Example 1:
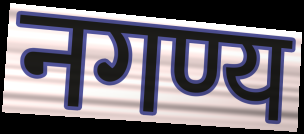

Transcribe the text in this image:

नगण्य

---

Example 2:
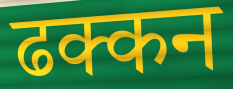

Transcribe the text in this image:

ढक्कन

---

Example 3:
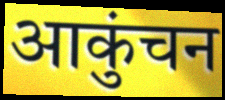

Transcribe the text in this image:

आकुंचन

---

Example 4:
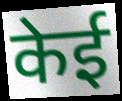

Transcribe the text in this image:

केई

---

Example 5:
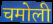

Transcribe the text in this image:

चमोली